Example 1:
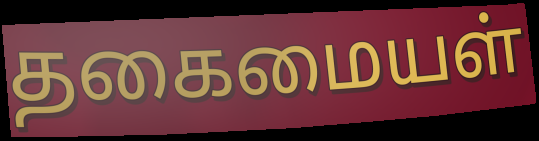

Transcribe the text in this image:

தகைமையள்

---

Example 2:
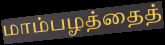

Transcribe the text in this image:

மாம்பழத்தைத்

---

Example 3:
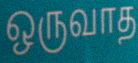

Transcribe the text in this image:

ஒருவாத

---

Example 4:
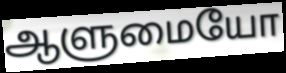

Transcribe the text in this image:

ஆளுமையோ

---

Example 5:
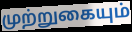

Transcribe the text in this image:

முற்றுகையும்